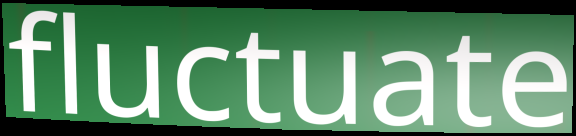
fluctuate